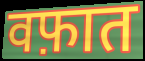
वफ़ात